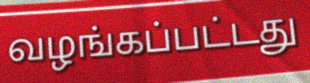
வழங்கப்பட்டது